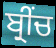
ਬ੍ਰੀਂਚ